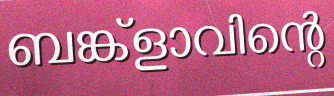
ബങ്ക്ളാവിന്റെ